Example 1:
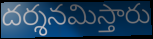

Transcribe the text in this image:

దర్శనమిస్తారు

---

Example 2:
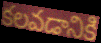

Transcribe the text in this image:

కలవడానికి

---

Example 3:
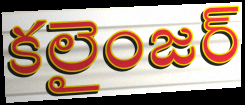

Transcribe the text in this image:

కలైంజర్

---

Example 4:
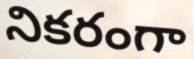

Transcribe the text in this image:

నికరంగా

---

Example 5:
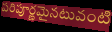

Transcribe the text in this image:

పరిపూర్ణమైనటువంటి